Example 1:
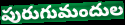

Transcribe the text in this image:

పురుగుమందుల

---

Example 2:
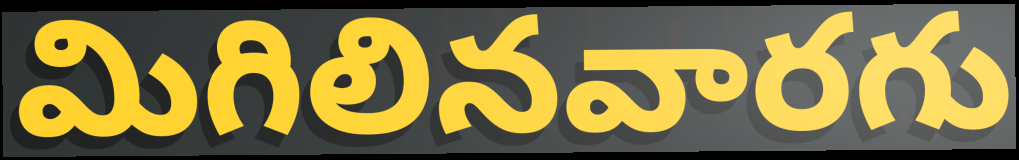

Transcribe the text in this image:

మిగిలినవారగు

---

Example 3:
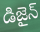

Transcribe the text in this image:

డిజైన్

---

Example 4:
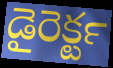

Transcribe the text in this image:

డైరెక్టర్‍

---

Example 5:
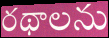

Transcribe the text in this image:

రథాలను